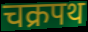
चक्रपथ